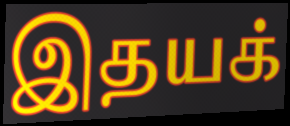
இதயக்